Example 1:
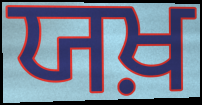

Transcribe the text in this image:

ਯਖ਼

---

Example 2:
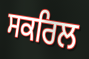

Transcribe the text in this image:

ਸਕਰਿਲ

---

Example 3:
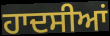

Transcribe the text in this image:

ਹਾਦਸੀਆਂ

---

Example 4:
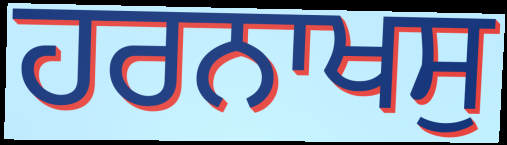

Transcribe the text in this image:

ਹਰਨਾਖਸੁ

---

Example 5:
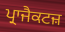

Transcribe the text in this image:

ਪ੍ਰਾਜੈਕਟਜ਼